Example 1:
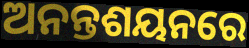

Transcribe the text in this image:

ଅନନ୍ତଶୟନରେ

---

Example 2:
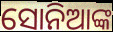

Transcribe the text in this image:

ସୋନିଆଙ୍କ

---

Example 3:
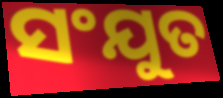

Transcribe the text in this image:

ସଂଯୁତ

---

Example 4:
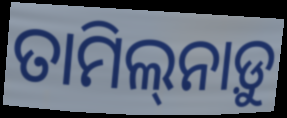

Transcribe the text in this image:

ତାମିଲ୍‌ନାଡ଼ୁ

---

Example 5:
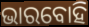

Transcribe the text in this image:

ଭାରବୋହି